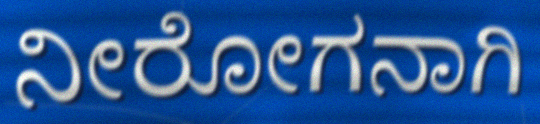
ನೀರೋಗನಾಗಿ